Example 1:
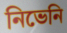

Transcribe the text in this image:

নিভেনি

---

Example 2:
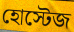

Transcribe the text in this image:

হোস্টেজ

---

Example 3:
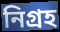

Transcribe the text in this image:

নিগ্রহ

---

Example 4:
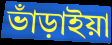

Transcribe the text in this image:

ভাঁড়াইয়া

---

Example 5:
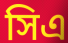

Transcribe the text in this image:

সিএ